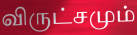
விருட்சமும்